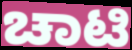
ಚಾಟಿ